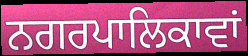
ਨਗਰਪਾਲਿਕਾਵਾਂ